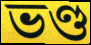
ভণ্ড